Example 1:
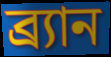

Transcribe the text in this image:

ব্র্যান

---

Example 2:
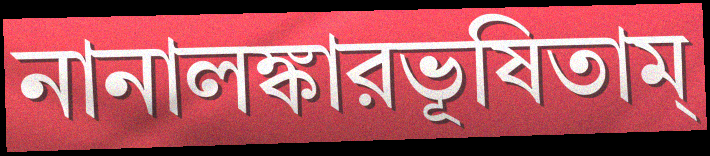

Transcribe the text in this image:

নানালঙ্কারভূষিতাম্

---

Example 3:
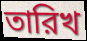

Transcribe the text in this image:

তারিখ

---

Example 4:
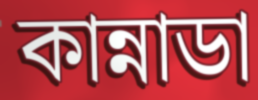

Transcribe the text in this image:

কান্নাডা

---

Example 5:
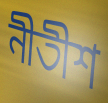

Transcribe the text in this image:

নীতীশ